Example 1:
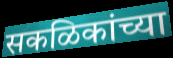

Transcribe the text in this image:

सकळिकांच्या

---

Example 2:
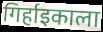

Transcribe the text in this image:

गिर्हाइकाला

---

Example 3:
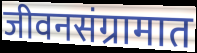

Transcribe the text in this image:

जीवनसंग्रामात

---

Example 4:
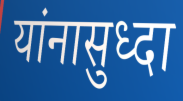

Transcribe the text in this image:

यांनासुध्दा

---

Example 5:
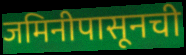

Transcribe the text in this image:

जमिनीपासूनची